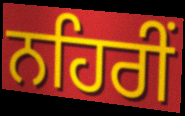
ਨਹਿਰੀਂ